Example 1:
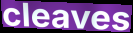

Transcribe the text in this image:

cleaves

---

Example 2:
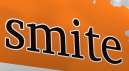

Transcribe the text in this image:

smite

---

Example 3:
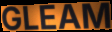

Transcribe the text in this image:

GLEAM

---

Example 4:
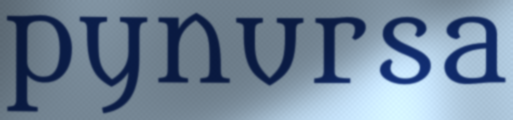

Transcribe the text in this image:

pynursa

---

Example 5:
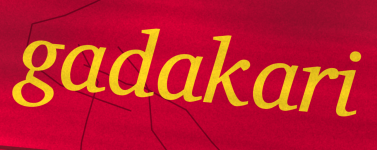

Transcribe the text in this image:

gadakari